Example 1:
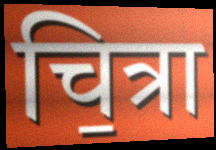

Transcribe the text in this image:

चि॒त्रा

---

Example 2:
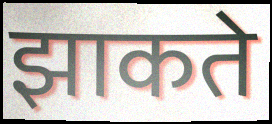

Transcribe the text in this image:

झाकते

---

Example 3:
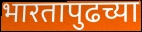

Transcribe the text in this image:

भारतापुढच्या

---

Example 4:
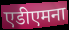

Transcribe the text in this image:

एडीएमना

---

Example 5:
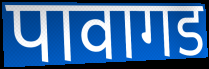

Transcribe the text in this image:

पावागड